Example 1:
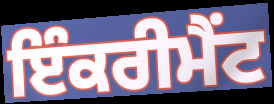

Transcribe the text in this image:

ਇੰਕਰੀਮੈਂਟ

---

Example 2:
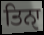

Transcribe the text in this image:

ਤਿਨੑਾ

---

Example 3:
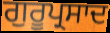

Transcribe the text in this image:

ਗੁਰੂਪ੍ਰਸਾਦ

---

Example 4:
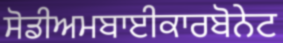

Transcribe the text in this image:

ਸੋਡੀਅਮਬਾਈਕਾਰਬੋਨੇਟ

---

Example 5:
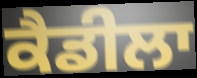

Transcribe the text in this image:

ਕੈਡੀਲਾ